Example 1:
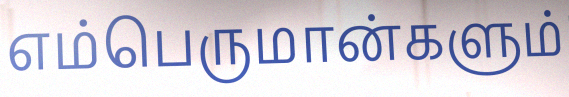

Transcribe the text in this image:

எம்பெருமான்களும்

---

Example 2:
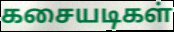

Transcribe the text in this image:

கசையடிகள்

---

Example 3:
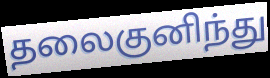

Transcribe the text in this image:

தலைகுனிந்து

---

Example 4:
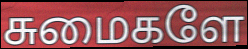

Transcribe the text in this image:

சுமைகளே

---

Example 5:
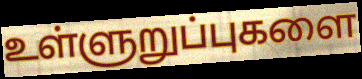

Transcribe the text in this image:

உள்ளுறுப்புகளை